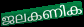
ജലകണിക